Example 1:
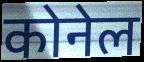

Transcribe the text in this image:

कोनेल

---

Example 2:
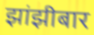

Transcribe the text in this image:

झांझीबार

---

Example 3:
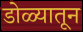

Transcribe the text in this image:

डोळ्यातून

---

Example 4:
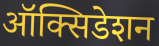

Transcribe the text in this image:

ऑक्सिडेशन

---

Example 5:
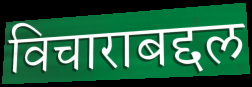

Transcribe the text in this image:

विचाराबद्दल